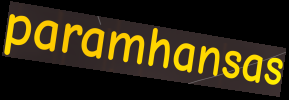
paramhansas